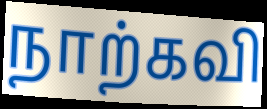
நாற்கவி